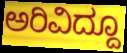
ಅರಿವಿದ್ದೂ